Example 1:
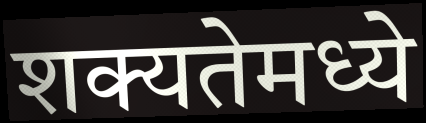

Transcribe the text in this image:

शक्यतेमध्ये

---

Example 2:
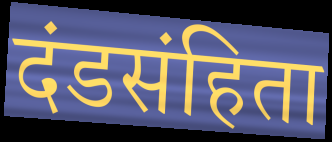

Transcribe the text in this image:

दंडसंहिता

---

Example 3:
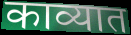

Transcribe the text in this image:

काव्यात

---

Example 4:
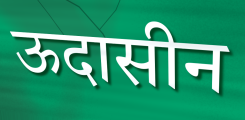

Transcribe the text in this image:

ऊदासीन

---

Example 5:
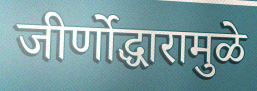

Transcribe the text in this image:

जीर्णोद्धारामुळे